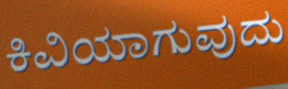
ಕಿವಿಯಾಗುವುದು